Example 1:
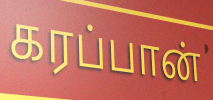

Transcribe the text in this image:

கரப்பான்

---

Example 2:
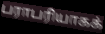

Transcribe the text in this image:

பராபரியாகக்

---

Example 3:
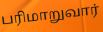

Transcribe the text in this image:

பரிமாறுவார்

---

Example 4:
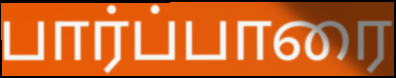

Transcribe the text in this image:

பார்ப்பாரை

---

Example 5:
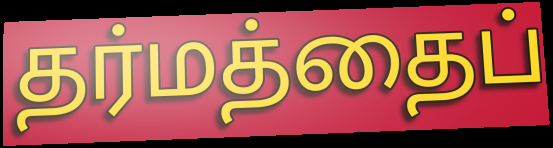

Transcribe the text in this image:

தர்மத்தைப்